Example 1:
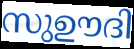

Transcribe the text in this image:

സുഊദി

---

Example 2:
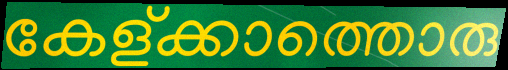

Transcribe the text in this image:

കേള്ക്കാത്തൊരു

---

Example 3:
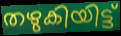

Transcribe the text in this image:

തഴുകിയിട്ട്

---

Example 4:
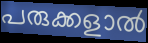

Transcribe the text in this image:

പരുക്കളാൽ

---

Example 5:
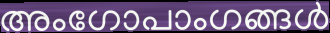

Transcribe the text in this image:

അംഗോപാംഗങ്ങൾ